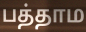
பத்தாம